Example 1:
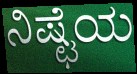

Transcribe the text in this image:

ನಿಷ್ಟೆಯ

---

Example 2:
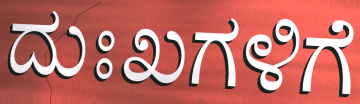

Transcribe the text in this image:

ದುಃಖಗಳಿಗೆ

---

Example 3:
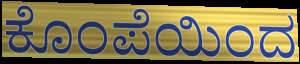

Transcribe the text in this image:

ಕೊಂಪೆಯಿಂದ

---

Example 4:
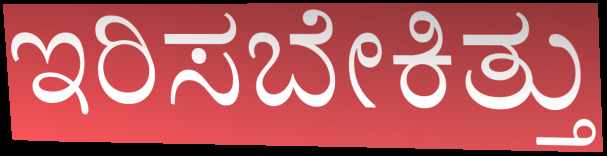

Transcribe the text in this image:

ಇರಿಸಬೇಕಿತ್ತು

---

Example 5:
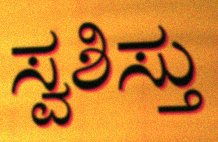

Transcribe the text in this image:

ಸ್ವಶಿಸ್ತು